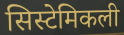
सिस्टेमिकली